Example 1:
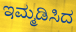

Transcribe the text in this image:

ಇಮ್ಮಡಿಸಿದ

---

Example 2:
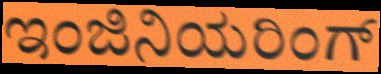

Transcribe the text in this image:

ಇಂಜಿನಿಯರಿಂಗ್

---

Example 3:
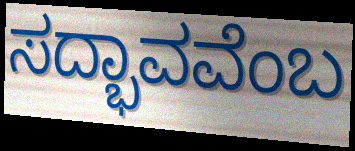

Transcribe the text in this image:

ಸದ್ಭಾವವೆಂಬ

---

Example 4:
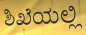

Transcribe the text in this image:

ಶಿಖೆಯಲ್ಲಿ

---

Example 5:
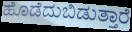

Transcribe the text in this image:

ಹೊಡೆದುಬಿಡುತ್ತಾರೆ